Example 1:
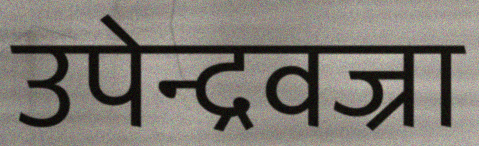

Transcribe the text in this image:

उपेन्द्रवज्रा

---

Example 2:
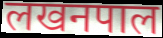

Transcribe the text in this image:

लखनपाल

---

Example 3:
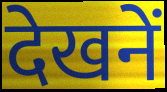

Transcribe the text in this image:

देखनें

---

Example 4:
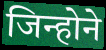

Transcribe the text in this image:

जिन्‍होने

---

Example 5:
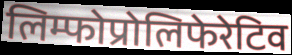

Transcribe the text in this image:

लिम्फोप्रोलिफेरेटिव